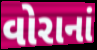
વોરાનાં